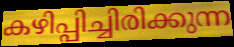
കഴിപ്പിച്ചിരിക്കുന്ന